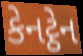
કેનટ્ઠેન